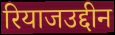
रियाजउद्दीन